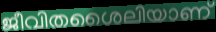
ജീവിതശൈലിയാണ്